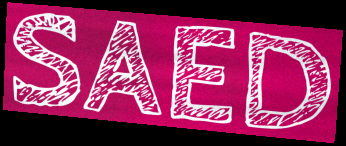
SAED